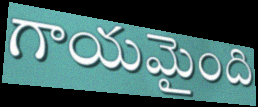
గాయమైంది